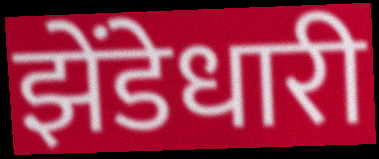
झेंडेधारी